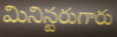
మినిస్టరుగారు